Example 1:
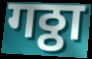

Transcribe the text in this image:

गठ्ठा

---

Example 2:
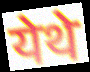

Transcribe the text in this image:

येथे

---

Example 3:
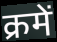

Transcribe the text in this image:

क्रमें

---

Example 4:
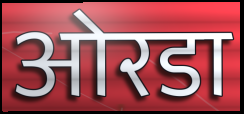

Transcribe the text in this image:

ओरडा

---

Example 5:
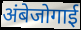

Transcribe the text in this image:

अंबेजोगाई